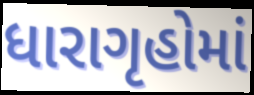
ધારાગૃહોમાં